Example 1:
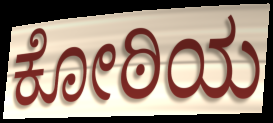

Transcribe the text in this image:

ಕೋಠಿಯ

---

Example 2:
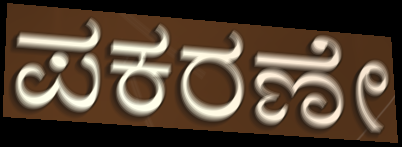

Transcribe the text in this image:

ಪಕರಣೇ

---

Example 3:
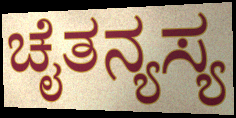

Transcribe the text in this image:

ಚೈತನ್ಯಸ್ಯ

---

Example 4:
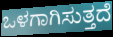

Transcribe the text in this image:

ಒಳಗಾಗಿಸುತ್ತದೆ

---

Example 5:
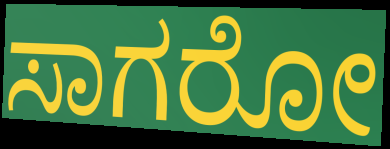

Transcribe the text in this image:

ಸಾಗರೋ